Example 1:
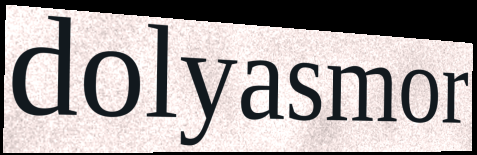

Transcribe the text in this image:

dolyasmor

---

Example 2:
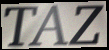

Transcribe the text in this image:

TAZ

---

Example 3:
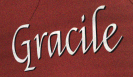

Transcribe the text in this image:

Gracile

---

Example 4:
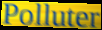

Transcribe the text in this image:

Polluter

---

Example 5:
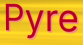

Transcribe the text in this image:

Pyre